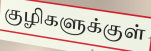
குழிகளுக்குள்